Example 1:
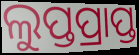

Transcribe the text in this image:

ଲୁପ୍ତପ୍ରାପ୍ତ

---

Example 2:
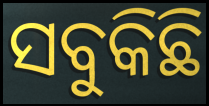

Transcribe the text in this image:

ସବୁକିଛି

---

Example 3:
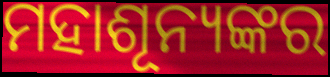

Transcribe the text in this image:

ମହାଶୂନ୍ୟଙ୍କର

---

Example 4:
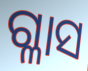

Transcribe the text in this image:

ଗ୍ଳାସ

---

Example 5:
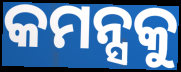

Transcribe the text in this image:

କମନ୍ସକୁ